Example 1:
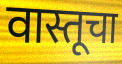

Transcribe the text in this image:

वास्तूचा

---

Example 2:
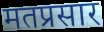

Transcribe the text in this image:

मतप्रसार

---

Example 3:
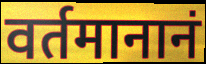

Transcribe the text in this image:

वर्तमानानं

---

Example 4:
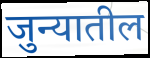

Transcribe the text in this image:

जुन्यातील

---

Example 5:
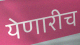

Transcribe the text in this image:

येणारीच